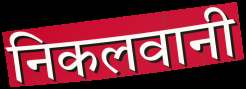
निकलवानी